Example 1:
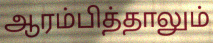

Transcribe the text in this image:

ஆரம்பித்தாலும்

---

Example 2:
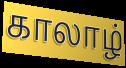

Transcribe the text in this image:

காலாழ்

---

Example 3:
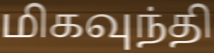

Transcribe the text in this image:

மிகவுந்தி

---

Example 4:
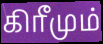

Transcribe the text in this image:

கிரீமும்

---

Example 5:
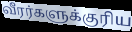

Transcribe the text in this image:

வீரர்களுக்குரிய